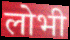
लोभी